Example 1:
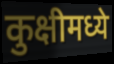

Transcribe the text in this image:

कुक्षीमध्ये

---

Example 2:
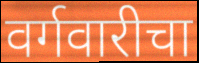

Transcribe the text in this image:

वर्गवारीचा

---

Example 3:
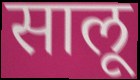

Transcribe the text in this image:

सालू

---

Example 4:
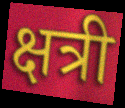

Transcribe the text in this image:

क्षत्री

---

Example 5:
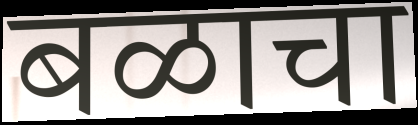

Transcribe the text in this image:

बळाचा